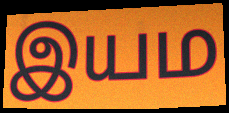
இயம